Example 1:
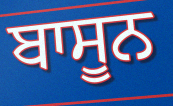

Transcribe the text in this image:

ਬਾਸੂਨ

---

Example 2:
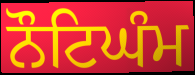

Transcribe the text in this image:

ਨੌਟਿਘੰਮ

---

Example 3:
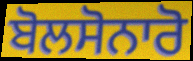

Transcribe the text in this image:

ਬੋਲਸੋਨਾਰੋ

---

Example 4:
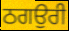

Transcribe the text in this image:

ਠਗਉਰੀ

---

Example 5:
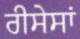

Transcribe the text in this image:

ਰੀਸੇਸਾਂ